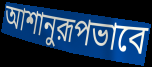
আশানুরূপভাবে